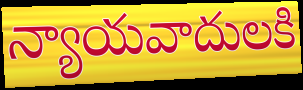
న్యాయవాదులకి